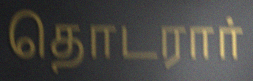
தொடரார்